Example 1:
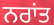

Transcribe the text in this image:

ਨਰਾਂਤ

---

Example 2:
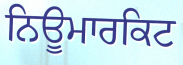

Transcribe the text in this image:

ਨਿਊਮਾਰਕਿਟ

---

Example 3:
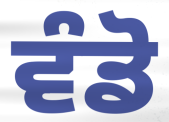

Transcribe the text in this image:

ਵੰਡੋ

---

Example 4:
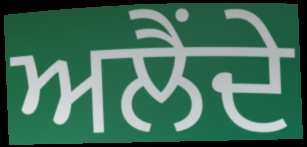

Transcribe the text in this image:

ਅਲੈਂਦੇ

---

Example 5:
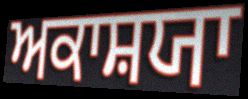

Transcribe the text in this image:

ਅਕਾਸ਼ਯਾ